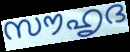
സൗഹൃദ